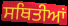
ਸਥਿਤੀਆਂ